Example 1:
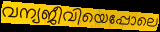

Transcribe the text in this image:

വന്യജീവിയെപ്പോലെ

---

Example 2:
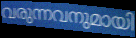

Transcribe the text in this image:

വരുന്നവനുമായി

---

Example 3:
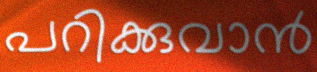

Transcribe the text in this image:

പറിക്കുവാൻ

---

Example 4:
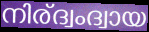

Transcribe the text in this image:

നിര്ദ്വംദ്വായ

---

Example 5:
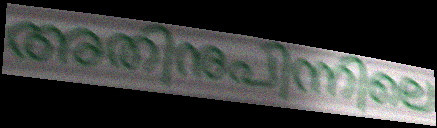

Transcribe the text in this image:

അതിനുപിന്നിലെ